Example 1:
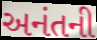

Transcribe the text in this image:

અનંતની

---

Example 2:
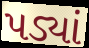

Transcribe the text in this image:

પડ્યાં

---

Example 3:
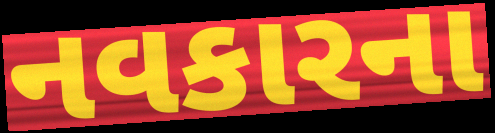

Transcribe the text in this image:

નવકારના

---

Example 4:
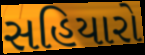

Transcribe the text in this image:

સહિયારો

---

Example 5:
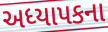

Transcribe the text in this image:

અધ્યાપકના